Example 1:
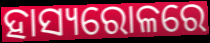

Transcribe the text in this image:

ହାସ୍ୟରୋଳରେ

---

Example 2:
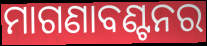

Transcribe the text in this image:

ମାଗଣାବଣ୍ଟନର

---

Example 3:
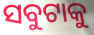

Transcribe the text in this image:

ସବୁଟାକୁ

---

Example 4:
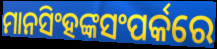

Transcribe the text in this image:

ମାନସିଂହଙ୍କସଂପର୍କରେ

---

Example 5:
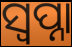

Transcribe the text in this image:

ସ୍ଵପ୍ନା